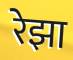
रेझा